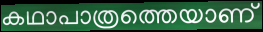
കഥാപാത്രത്തെയാണ്